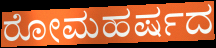
ರೋಮಹರ್ಷದ